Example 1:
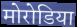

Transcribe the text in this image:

मोरोडिया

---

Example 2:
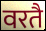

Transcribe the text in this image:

वरतै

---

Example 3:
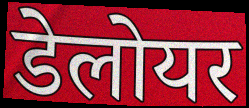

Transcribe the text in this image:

डेलोयर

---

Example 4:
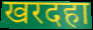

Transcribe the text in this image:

खरदहा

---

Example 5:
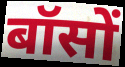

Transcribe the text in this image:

बॉसों